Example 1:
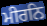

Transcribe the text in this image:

ਮੀਰਨਿ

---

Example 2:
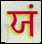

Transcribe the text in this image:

ਯਂ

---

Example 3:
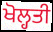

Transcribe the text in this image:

ਖੋਲ੍ਹਤੀ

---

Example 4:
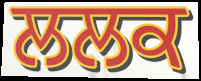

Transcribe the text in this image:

ਲਲਕ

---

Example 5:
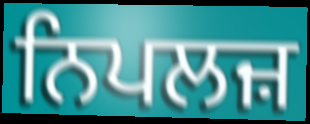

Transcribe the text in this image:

ਨਿਪਲਜ਼